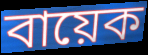
বায়েক